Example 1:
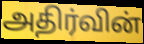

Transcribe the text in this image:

அதிர்வின்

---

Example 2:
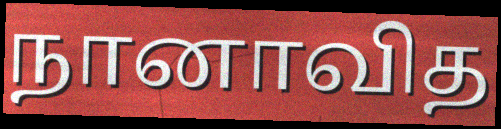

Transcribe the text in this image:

நானாவித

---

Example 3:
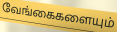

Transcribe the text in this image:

வேங்கைகளையும்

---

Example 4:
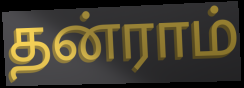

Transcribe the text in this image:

தன்ராம்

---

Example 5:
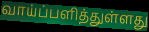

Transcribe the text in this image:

வாய்ப்பளித்துள்ளது